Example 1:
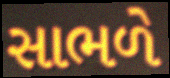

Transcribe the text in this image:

સાભળે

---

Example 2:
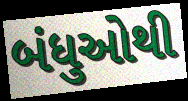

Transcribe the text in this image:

બંધુઓથી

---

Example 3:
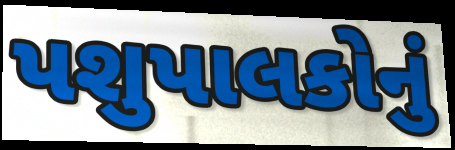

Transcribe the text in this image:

પશુપાલકોનું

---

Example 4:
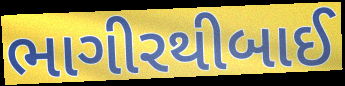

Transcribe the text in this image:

ભાગીરથીબાઈ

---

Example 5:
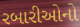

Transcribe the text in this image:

રબારીઓનો